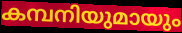
കമ്പനിയുമായും